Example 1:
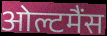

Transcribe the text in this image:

ओल्टमैंस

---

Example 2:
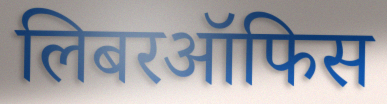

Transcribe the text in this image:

लिबरऑफिस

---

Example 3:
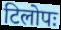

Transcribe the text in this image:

टिलोपः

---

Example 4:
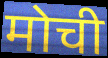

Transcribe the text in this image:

मोची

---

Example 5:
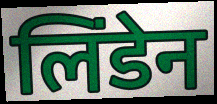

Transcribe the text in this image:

लिंडेन